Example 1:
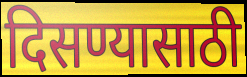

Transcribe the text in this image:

दिसण्यासाठी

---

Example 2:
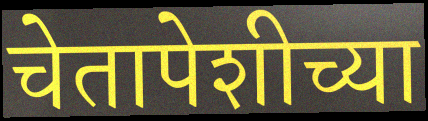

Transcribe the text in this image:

चेतापेशीच्या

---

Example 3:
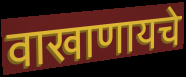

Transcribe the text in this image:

वाखाणायचे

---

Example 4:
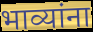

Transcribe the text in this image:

भाव्यांना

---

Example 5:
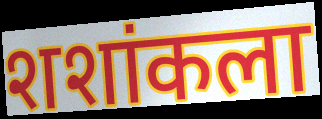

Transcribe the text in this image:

शशांकला